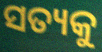
ସତ୍ୟକୁ